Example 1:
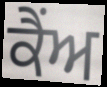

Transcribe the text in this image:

ਕੈਂਅ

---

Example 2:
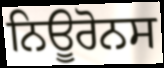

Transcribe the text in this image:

ਨਿਊਰੋਨਸ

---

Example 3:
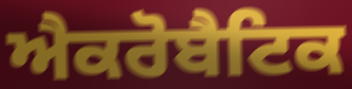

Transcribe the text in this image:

ਐਕਰੋਬੈਟਿਕ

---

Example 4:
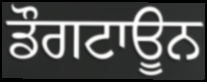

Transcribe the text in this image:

ਡੌਗਟਾਊਨ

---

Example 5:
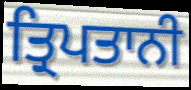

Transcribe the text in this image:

ਤ੍ਰਿਪਤਾਨੀ